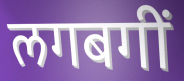
लगबगीं